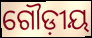
ଗୌଡ଼ୀୟ